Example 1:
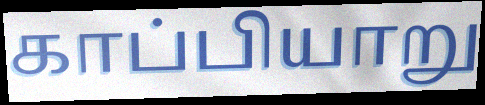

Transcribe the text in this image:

காப்பியாறு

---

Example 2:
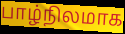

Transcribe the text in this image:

பாழ்நிலமாக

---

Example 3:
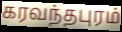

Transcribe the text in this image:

கரவந்தபுரம்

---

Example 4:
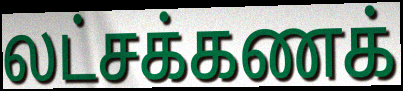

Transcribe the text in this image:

லட்சக்கணக்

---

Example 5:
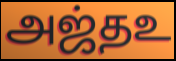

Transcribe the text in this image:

அஜ்தஉ